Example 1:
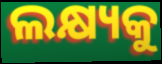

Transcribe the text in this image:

ଲକ୍ଷ୍ୟକୁ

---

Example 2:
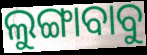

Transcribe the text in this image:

ଲୁଙ୍ଗାବାବୁ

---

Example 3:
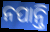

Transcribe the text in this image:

ନପାନ୍ତି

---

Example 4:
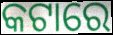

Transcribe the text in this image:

କଟାରେ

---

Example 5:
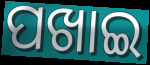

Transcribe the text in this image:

ପଖାଇ